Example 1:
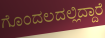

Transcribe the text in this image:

ಗೊಂದಲದಲ್ಲಿದ್ದಾರೆ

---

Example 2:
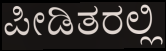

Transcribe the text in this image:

ಪೀಡಿತರಲ್ಲಿ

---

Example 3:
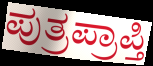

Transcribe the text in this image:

ಪುತ್ರಪ್ರಾಪ್ತಿ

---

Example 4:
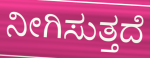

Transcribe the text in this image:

ನೀಗಿಸುತ್ತದೆ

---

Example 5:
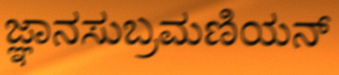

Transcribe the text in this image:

ಜ್ಞಾನಸುಬ್ರಮಣಿಯನ್